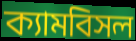
ক্যামবিসল